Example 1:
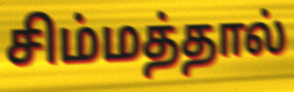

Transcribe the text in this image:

சிம்மத்தால்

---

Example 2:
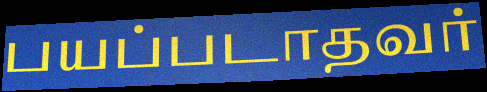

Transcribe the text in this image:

பயப்படாதவர்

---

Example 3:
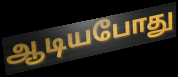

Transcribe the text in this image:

ஆடியபோது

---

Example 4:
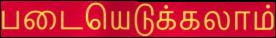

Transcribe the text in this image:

படையெடுக்கலாம்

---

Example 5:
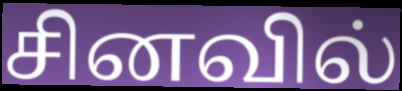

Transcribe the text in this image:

சினவில்